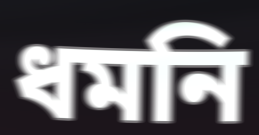
ধমনি